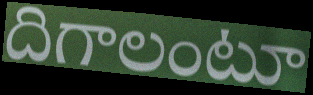
దిగాలంటూ